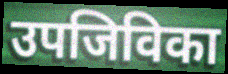
उपजिविका